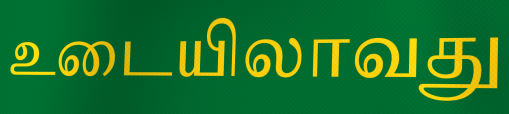
உடையிலாவது